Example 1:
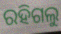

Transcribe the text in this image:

ରହିଗଲୁ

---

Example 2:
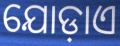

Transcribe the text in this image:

ଯୋଡ଼ାଏ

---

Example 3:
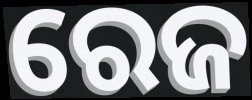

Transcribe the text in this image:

ରେଜ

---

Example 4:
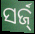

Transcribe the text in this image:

ସର୍ଜ୍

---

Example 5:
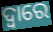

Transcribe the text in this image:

ଦ୍ବାରେ